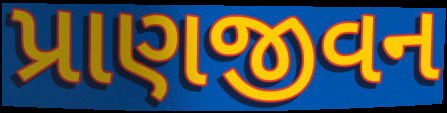
પ્રાણજીવન